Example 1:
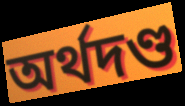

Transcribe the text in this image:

অর্থদণ্ড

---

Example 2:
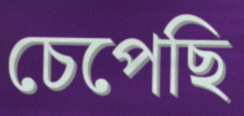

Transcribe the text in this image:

চেপেছি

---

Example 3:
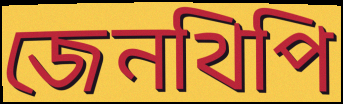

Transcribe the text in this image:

জেনথিপি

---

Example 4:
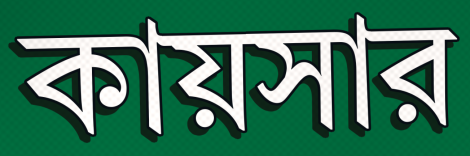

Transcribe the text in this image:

কায়সার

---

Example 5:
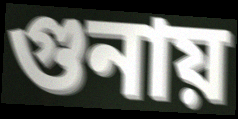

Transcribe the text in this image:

গুনায়